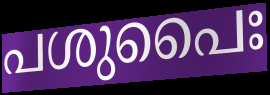
പശുപൈഃ